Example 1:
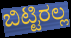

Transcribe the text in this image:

ಬಿಟ್ಟಿರಲ್ಲ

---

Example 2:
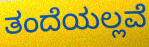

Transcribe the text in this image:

ತಂದೆಯಲ್ಲವೆ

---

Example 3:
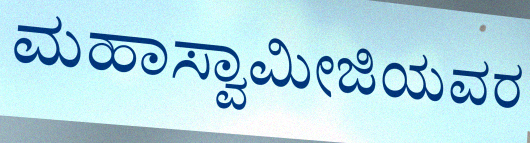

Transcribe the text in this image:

ಮಹಾಸ್ವಾಮೀಜಿಯವರ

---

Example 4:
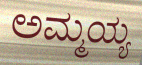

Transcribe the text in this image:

ಅಮ್ಮಯ್ಯ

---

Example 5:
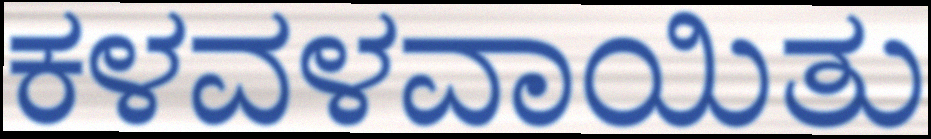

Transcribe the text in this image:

ಕಳವಳವಾಯಿತು